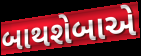
બાથશેબાએ